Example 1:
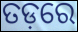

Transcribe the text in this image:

ତଡ଼ରେ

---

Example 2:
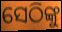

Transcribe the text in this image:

ସେଠିଙ୍କୁ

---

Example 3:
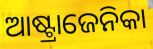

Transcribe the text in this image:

ଆଷ୍ଟ୍ରାଜେନିକା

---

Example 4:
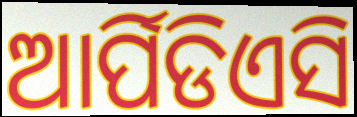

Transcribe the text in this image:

ଆର୍ପିଡିଏସି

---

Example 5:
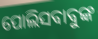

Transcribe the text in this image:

ପୋଲିସବାବୁଙ୍କ